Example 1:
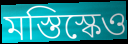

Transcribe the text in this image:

মস্তিস্কেও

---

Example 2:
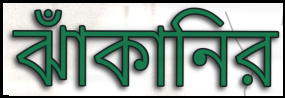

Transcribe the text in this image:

ঝাঁকানির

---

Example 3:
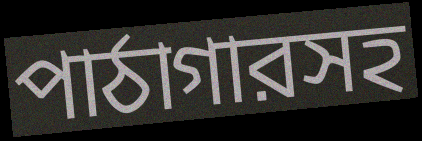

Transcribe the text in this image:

পাঠাগারসহ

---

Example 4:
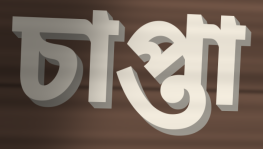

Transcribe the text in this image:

চাপ্তা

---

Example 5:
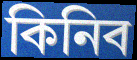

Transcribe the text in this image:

কিনিব